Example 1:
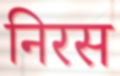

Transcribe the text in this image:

निरस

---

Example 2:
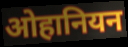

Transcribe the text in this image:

ओहानियन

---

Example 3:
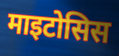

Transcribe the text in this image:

माइटोसिस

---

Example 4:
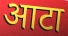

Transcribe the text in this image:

आटा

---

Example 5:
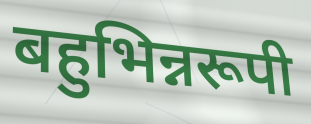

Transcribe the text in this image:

बहुभिन्नरूपी